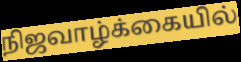
நிஜவாழ்க்கையில்